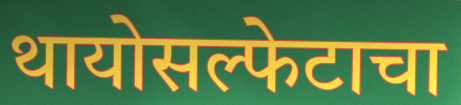
थायोसल्फेटाचा